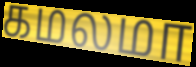
கமலமா